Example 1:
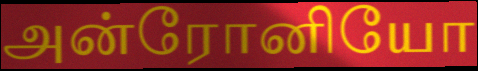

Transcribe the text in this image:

அன்ரோனியோ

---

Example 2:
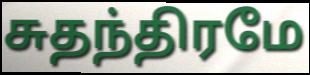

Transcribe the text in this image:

சுதந்திரமே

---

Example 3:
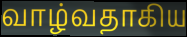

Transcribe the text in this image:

வாழ்வதாகிய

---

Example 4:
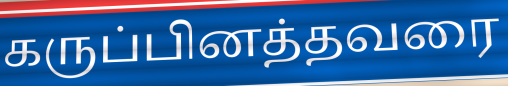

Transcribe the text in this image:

கருப்பினத்தவரை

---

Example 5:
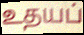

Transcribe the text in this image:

உதயப்